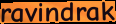
ravindrak